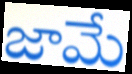
జామే